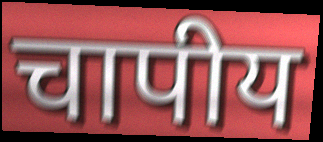
चापीय